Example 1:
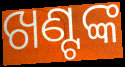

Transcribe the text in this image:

ଖଣ୍ଟଙ୍କ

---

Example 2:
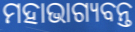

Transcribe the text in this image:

ମହାଭାଗ୍ୟବନ୍ତ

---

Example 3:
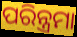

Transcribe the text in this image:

ପରିନ୍ତ୍ରମା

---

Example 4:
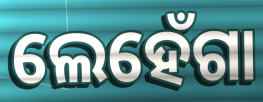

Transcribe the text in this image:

ଲେହେଁଗା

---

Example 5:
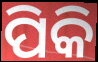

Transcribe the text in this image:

ପିକି